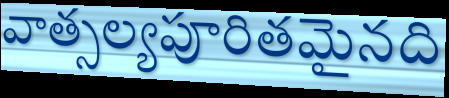
వాత్సల్యపూరితమైనది